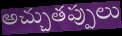
అచ్చుతప్పులు